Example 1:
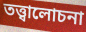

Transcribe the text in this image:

তত্ত্বালোচনা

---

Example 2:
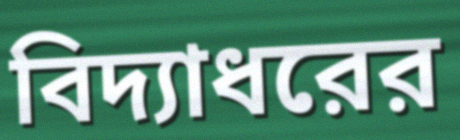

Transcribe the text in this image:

বিদ্যাধরের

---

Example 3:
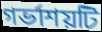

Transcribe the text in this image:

গর্ভাশয়টি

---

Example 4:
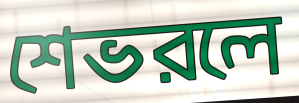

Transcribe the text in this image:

শেভরলে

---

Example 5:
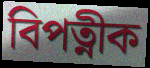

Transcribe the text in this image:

বিপত্নীক